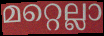
മറ്റെല്ലാ